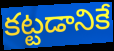
కట్టడానికే